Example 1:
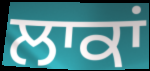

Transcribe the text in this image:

ਲਾਕਾਂ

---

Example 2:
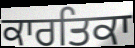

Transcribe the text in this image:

ਕਾਰਤਿਕਾ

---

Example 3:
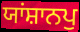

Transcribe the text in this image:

ਯਾਂਸ਼ਾਨਪੁ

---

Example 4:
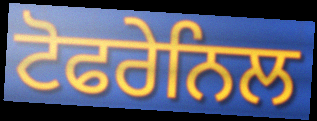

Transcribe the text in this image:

ਟੋਫਰੇਨਿਲ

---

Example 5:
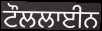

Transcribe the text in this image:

ਟੌਲਲਾਈਨ